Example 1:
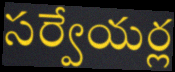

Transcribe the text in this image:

సర్వేయర్ల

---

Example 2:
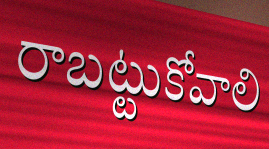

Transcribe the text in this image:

రాబట్టుకోవాలి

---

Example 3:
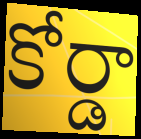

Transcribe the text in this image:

కోర్డా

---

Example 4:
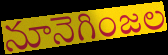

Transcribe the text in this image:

నూనెగింజల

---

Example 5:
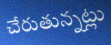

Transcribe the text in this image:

చేరుతున్నట్లు